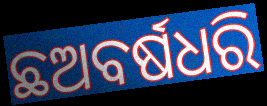
ଛଅବର୍ଷଧରି